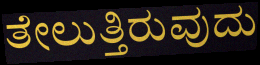
ತೇಲುತ್ತಿರುವುದು